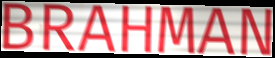
BRAHMAN